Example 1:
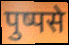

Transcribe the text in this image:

पुष्पसे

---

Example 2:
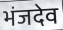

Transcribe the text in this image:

भंजदेव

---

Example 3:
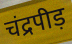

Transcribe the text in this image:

चंद्रपीड़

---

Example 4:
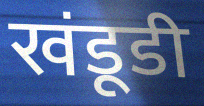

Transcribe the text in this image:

खंडूडी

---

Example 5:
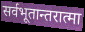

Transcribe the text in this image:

सर्वभूतान्तरात्मा